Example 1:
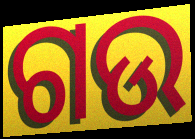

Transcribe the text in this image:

ଗଉ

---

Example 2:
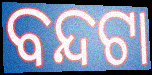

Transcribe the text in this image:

ବନ୍ଦଟା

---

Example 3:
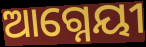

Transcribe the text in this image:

ଆଗ୍ନେୟୀ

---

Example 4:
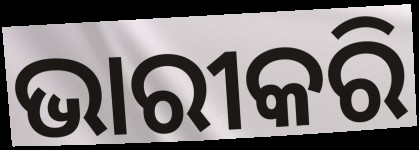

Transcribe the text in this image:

ଭାରୀକରି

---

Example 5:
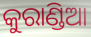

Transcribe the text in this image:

କୁରାଣ୍ଡିଆ